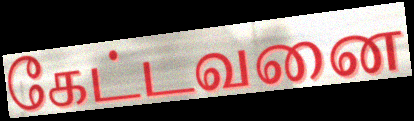
கேட்டவனை